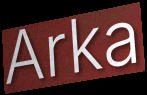
Arka